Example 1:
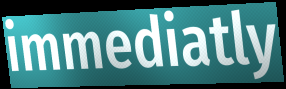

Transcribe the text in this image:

immediatly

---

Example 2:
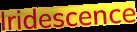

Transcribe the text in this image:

Iridescence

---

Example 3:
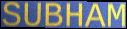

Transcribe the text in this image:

SUBHAM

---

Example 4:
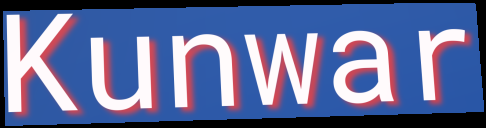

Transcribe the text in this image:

Kunwar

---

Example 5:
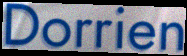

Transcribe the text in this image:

Dorrien